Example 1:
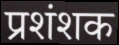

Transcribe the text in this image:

प्रशंशक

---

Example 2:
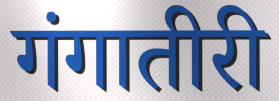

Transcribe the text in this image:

गंगातीरी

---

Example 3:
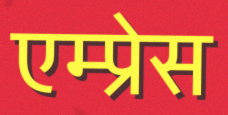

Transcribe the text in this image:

एम्प्रेस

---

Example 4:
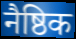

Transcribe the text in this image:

नैष्ठिक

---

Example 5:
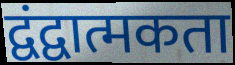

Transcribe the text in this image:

द्वंद्वात्मकता